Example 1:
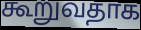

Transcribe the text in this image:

கூறுவதாக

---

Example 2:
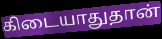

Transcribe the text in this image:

கிடையாதுதான்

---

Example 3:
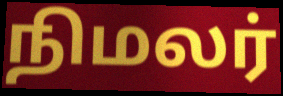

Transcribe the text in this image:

நிமலர்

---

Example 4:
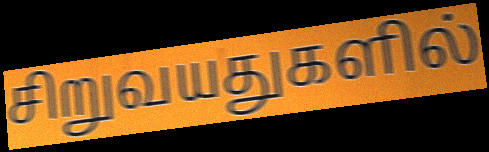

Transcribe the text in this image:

சிறுவயதுகளில்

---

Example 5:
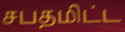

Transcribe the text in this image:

சபதமிட்ட